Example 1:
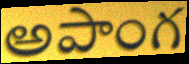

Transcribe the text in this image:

అపాంగ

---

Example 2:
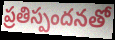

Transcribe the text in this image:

ప్రతిస్పందనతో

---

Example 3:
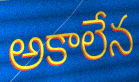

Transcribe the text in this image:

అకాలేన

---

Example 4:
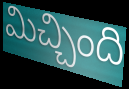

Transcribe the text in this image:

మిచ్చింది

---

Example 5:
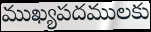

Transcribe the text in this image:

ముఖ్యపదములకు